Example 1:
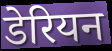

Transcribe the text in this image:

डेरियन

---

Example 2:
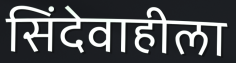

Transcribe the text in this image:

सिंदेवाहीला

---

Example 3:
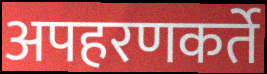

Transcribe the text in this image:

अपहरणकर्ते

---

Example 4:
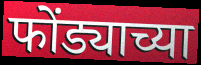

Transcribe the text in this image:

फोंड्याच्या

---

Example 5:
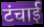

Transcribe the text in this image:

टंचाई